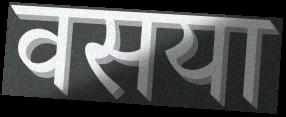
वसया